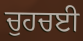
ਚੁਹਚਈ